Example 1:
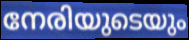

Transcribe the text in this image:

നേരിയുടെയും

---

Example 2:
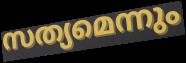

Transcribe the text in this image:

സത്യമെന്നും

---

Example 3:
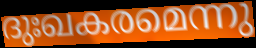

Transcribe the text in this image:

ദുഃഖകരമെന്നു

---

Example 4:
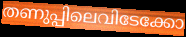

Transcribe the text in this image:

തണുപ്പിലെവിടേക്കോ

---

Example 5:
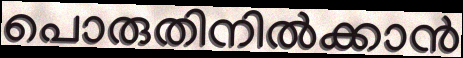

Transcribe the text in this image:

പൊരുതിനിൽക്കാൻ